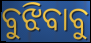
ବୁଝିବାବୁ